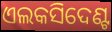
ଏଲକସିଦେଣ୍ଟ